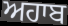
ਅਹਾਬ